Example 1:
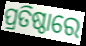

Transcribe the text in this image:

ପ୍ରତିଷ୍ଠାରେ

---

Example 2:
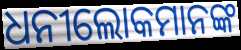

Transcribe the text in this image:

ଧନୀଲୋକମାନଙ୍କ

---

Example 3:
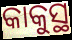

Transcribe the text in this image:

କାକୁସ୍ଥ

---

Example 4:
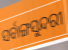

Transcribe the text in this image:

ସର୍ବାଙ୍ଗସୁନ୍ଦରୀ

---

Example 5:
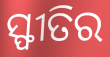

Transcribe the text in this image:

ସ୍ଫୀତିର